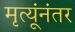
मृत्यूंनंतर